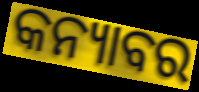
କନ୍ୟାବର